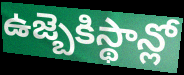
ఉజ్బెకిస్థాన్లో